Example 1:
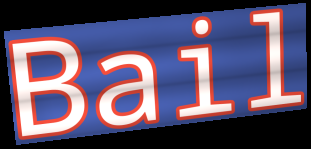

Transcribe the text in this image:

Bail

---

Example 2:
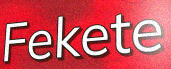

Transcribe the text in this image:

Fekete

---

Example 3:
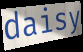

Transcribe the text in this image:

daisy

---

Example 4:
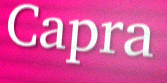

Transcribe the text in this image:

Capra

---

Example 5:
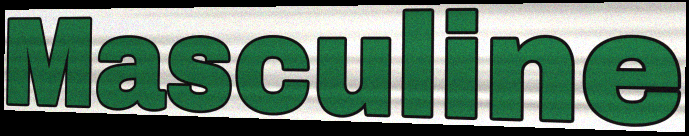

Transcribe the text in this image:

Masculine